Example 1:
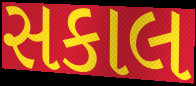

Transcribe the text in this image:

સકાલ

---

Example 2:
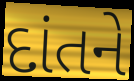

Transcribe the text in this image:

દાંતને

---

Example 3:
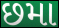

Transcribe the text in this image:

છમા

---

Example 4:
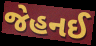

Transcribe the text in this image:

જેહનઈ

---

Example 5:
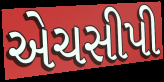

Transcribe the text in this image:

એચસીપી